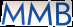
MMB